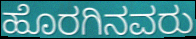
ಹೊರಗಿನವರು